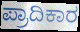
ಪ್ರಾದಿಕಾರ